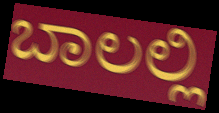
ಬಾಲಲ್ಲಿ